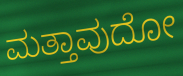
ಮತ್ತಾವುದೋ